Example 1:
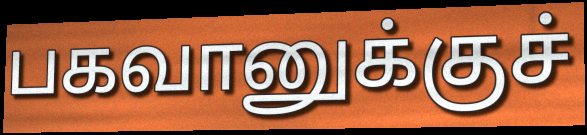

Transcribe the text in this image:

பகவானுக்குச்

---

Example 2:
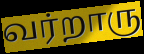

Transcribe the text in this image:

வர்றாரு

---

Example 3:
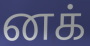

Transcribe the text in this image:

னக்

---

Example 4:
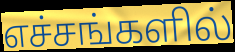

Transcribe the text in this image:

எச்சங்களில்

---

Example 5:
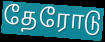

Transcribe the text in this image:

தேரோடு